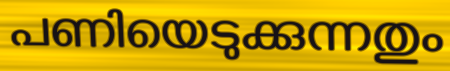
പണിയെടുക്കുന്നതും